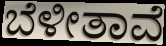
ಬೆಳೀತಾವೆ